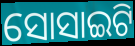
ସୋସାଇଟି